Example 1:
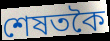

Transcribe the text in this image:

শেষতকৈ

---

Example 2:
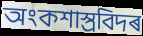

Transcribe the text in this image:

অংকশাস্ত্ৰবিদৰ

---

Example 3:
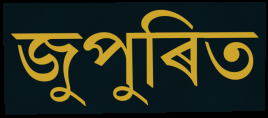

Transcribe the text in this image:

জুপুৰিত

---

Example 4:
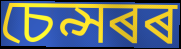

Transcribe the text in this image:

চেন্সৰৰ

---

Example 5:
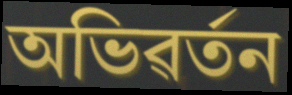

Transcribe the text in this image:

অভিৱৰ্তন